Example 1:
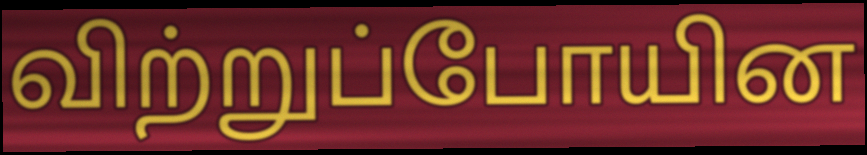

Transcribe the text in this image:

விற்றுப்போயின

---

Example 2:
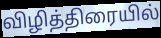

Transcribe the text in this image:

விழித்திரையில்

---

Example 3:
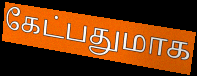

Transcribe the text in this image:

கேட்பதுமாக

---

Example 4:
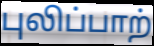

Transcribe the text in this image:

புலிப்பாற்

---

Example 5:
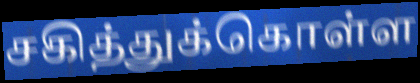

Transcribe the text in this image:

சகித்துக்கொள்ள